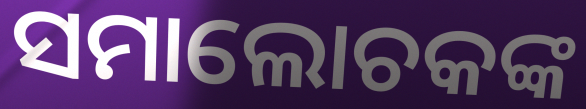
ସମାଲୋଚକଙ୍କ